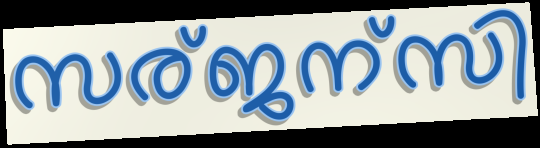
സര്ജന്സി